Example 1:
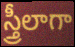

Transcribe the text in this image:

స్త్రీలాగా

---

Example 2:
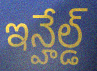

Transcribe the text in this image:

ఇన్హేల్డ్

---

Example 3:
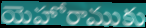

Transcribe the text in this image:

యెహోరాముకు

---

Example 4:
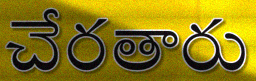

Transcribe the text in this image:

చేరతారు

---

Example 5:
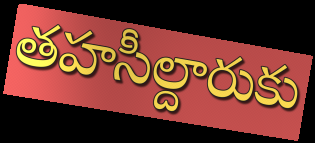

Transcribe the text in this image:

తహసీల్దారుకు